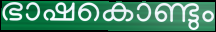
ഭാഷകൊണ്ടും